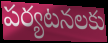
పర్యటనలకు